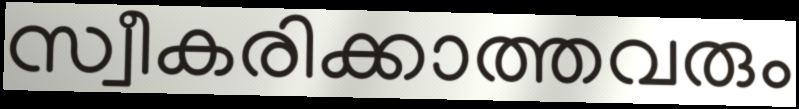
സ്വീകരിക്കാത്തവരും